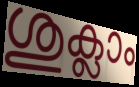
ശുക്ലാം